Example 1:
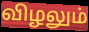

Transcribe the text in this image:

விழலும்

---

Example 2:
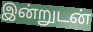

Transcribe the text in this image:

இன்றுடன்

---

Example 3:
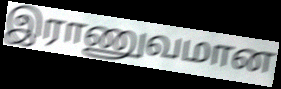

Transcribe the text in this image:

இராணுவமான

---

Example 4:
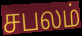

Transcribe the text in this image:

சபலம்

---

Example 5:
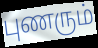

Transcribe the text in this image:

புணரும்